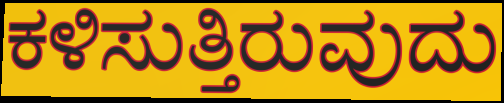
ಕಳಿಸುತ್ತಿರುವುದು